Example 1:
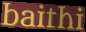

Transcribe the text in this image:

baithi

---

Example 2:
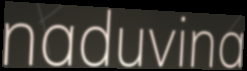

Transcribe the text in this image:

naduvina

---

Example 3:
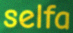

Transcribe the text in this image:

selfa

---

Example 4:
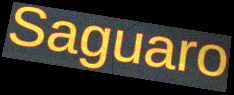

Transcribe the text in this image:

Saguaro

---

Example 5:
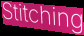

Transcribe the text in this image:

Stitching